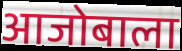
आजोबाला